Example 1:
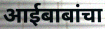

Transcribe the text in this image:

आईबाबांचा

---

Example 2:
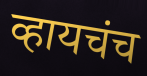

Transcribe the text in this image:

व्हायचंच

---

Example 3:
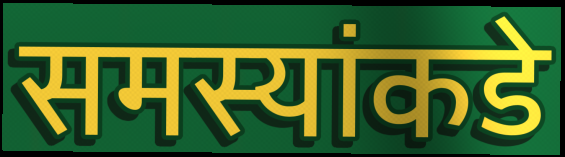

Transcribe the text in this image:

समस्यांकडे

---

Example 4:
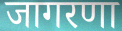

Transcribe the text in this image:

जागरणा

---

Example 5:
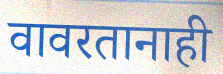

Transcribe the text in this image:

वावरतानाही